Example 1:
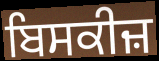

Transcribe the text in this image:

ਬਿਸਕੀਜ਼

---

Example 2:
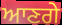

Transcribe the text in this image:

ਆਣਗੇ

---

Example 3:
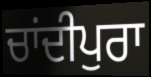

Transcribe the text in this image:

ਚਾਂਦੀਪੁਰਾ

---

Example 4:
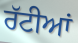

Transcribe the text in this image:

ਰੱਟੀਆਂ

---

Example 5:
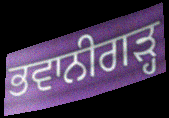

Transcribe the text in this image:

ਭਵਾਨੀਗੜ੍ਹ